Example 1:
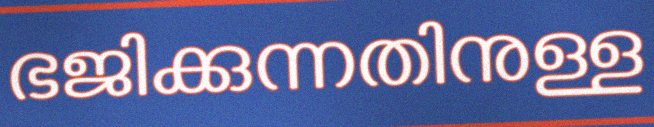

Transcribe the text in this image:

ഭജിക്കുന്നതിനുള്ള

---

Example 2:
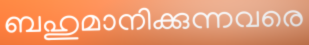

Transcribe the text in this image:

ബഹുമാനിക്കുന്നവരെ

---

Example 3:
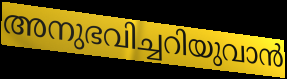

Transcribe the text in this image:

അനുഭവിച്ചറിയുവാൻ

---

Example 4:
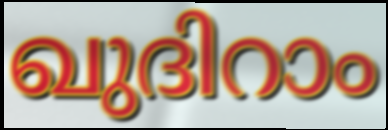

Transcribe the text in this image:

ഖുദിറാം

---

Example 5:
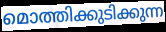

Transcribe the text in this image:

മൊത്തിക്കുടിക്കുന്ന